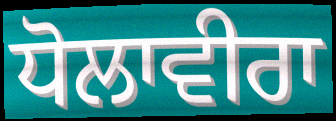
ਧੋਲਾਵੀਰਾ